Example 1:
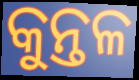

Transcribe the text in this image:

କୁନ୍ତଳ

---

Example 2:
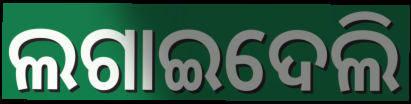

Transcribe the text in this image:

ଲଗାଇଦେଲି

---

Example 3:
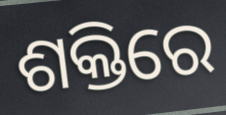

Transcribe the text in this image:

ଶକ୍ତିରେ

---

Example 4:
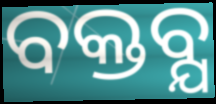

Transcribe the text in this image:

ବକ୍ତବ୍ଯ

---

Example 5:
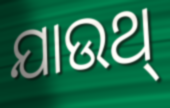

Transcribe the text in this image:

ଯାଉଥ୍